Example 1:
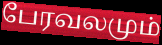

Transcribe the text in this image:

பேரவலமும்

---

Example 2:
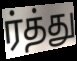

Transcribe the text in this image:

ர்த்து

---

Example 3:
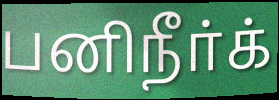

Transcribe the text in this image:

பனிநீர்க்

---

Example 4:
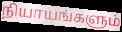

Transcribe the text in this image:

நியாயங்களும்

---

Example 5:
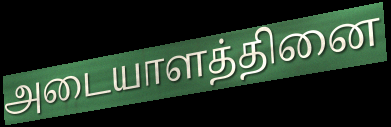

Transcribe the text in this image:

அடையாளத்தினை